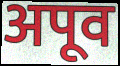
अपूव